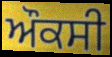
ਔਕਸੀ